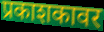
प्रकाशकावर